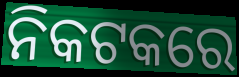
ନିକଟକରେ